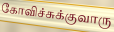
கோவிச்சுக்குவாரு